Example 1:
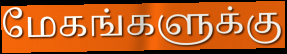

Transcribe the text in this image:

மேகங்களுக்கு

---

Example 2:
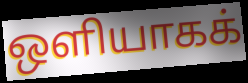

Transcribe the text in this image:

ஒளியாகக்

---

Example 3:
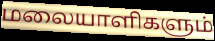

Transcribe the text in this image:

மலையாளிகளும்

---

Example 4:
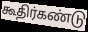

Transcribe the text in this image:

கூதிர்கண்டு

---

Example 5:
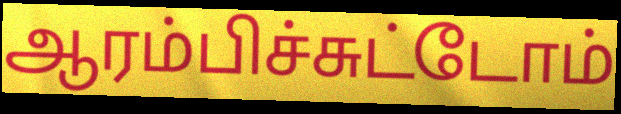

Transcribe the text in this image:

ஆரம்பிச்சுட்டோம்